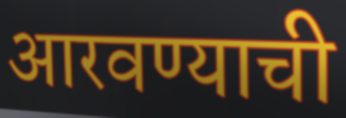
आरवण्याची